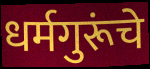
धर्मगुरूंचे